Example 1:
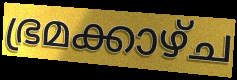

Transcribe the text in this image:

ഭ്രമക്കാഴ്ച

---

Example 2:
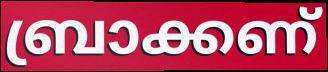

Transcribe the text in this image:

ബ്രാക്കണ്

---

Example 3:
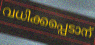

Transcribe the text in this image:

വധിക്കപ്പെടാന്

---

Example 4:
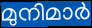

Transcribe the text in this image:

മുനിമാർ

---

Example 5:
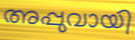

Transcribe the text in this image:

അപ്പുവായി